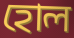
হোল